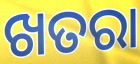
ଖତରା